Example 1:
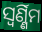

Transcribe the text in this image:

ସ୍ୱର୍ଣ୍ଣିମ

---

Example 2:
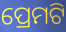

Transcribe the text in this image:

ପ୍ରେମଟି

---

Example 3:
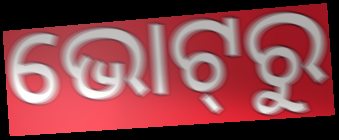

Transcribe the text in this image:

ଭୋଟ୍‌ରୁ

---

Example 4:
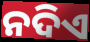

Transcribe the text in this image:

ନଦିଏ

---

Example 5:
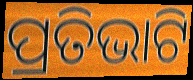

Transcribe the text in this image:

ପ୍ରତିଭାଟି